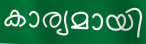
കാര്യമായി